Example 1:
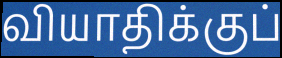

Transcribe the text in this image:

வியாதிக்குப்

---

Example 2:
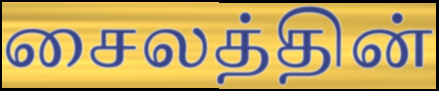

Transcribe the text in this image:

சைலத்தின்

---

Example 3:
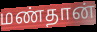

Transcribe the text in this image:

மண்தான்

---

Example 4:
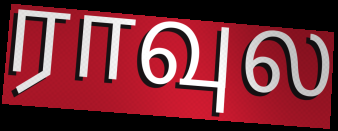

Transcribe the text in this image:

ராவுல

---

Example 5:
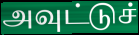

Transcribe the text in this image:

அவுட்டுச்